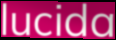
lucida